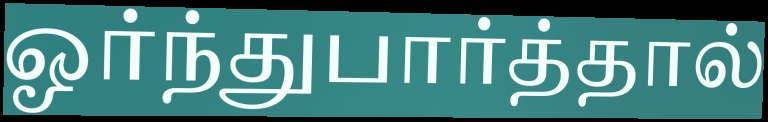
ஓர்ந்துபார்த்தால்